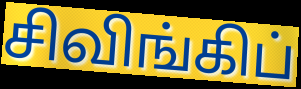
சிவிங்கிப்